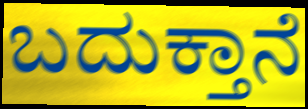
ಬದುಕ್ತಾನೆ